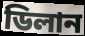
ডিলান